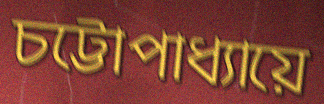
চট্টোপাধ্যায়ে